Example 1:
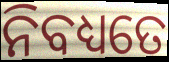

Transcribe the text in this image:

ନିବଧ୍ୟତେ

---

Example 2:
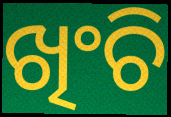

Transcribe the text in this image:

ଖିଂଚି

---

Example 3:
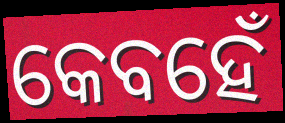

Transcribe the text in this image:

କେବହେଁ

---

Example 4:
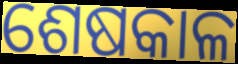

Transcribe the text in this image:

ଶେଷକାଳ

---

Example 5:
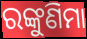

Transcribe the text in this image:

ରଙ୍କୁଣିମା